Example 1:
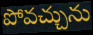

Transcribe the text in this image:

పోవచ్చును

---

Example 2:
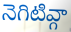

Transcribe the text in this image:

నెగిటివ్గా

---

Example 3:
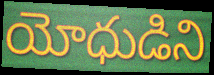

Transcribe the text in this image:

యోధుడిని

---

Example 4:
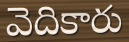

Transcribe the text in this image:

వెదికారు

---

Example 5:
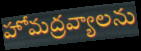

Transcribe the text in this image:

హోమద్రవ్యాలను